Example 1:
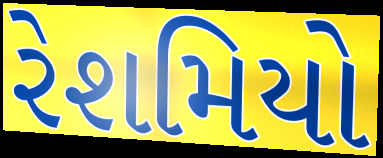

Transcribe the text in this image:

રેશમિયો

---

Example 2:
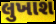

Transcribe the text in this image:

લુખાશ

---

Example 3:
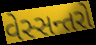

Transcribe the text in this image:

વેસ્સન્તરો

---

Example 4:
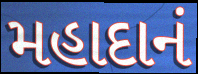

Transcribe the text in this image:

મહાદાનં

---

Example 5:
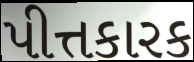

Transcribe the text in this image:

પીત્તકારક